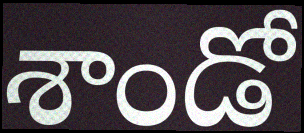
శాండో